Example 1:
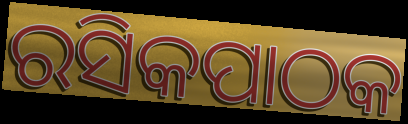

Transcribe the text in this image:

ରସିକପାଠକ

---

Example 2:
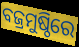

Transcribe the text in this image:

ବଜ୍ରମୁଷ୍ଠିରେ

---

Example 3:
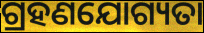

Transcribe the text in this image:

ଗ୍ରହଣଯୋଗ୍ୟତା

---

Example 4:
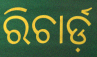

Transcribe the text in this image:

ରିଚାର୍ଡ଼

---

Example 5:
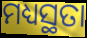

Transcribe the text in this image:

ମଧ୍ୟସ୍ଥତା